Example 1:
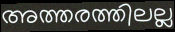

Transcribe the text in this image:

അത്തരത്തിലല്ല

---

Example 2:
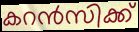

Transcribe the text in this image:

കറൻസിക്ക്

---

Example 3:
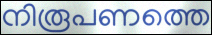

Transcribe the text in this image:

നിരൂപണത്തെ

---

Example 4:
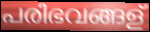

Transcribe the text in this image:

പരിഭവങ്ങള്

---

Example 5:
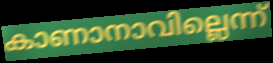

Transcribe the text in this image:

കാണാനാവില്ലെന്ന്